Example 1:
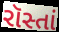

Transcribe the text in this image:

રૉસ્તાં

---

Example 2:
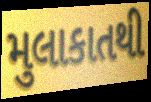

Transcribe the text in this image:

મુલાકાતથી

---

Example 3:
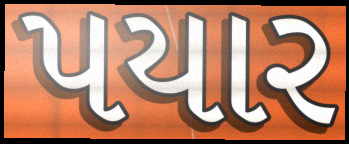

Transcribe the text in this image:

પયાર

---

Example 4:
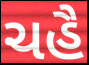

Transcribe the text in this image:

ચહૈ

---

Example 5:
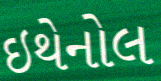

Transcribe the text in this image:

ઇથેનોલ